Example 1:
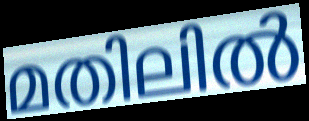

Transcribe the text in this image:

മതിലിൽ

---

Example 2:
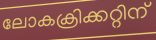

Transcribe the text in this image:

ലോകക്രിക്കറ്റിന്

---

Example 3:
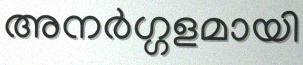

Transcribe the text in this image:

അനർഗ്ഗളമായി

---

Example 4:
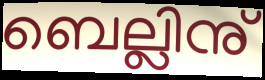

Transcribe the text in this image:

ബെല്ലിനു്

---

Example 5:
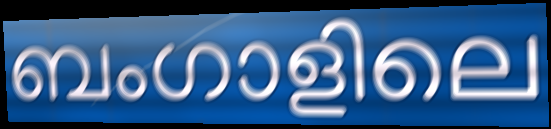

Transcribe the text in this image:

ബംഗാളിലെ